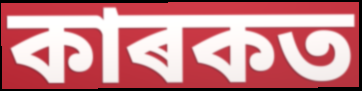
কাৰকত